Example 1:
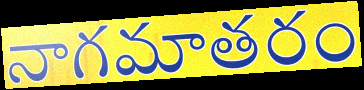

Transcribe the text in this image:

నాగమాతరం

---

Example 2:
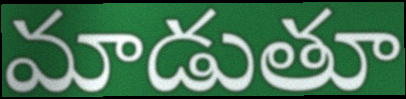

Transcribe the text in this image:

మాడుతూ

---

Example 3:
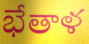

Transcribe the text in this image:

భేతాళ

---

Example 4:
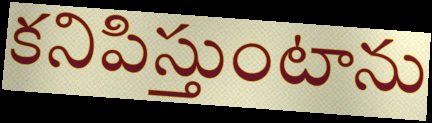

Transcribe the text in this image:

కనిపిస్తుంటాను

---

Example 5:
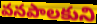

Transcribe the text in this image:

వనపాలకుని